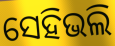
ସେହିଭଲି